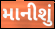
માનીશું